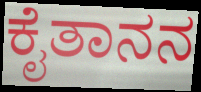
ಕೈತಾನನ